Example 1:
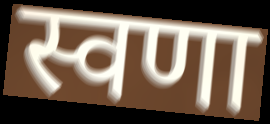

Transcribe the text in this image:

स्वणा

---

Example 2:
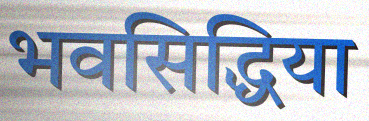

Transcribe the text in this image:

भवसिद्धिया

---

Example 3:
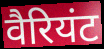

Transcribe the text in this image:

वैरियंट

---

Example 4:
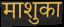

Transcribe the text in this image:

माशुका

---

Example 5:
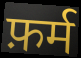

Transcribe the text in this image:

फ़र्म